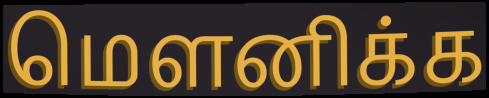
மெளனிக்க